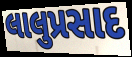
લાલુપ્રસાદ